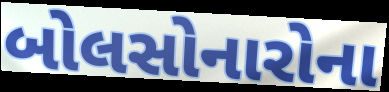
બોલસોનારોના